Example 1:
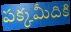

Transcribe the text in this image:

పక్కమీదికి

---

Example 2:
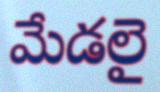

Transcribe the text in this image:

మేడలై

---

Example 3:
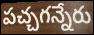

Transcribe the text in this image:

పచ్చగన్నేరు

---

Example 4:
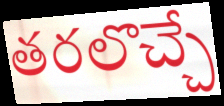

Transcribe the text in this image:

తరలొచ్చే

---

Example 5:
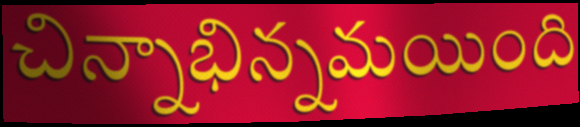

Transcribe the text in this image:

చిన్నాభిన్నమయింది